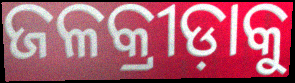
ଜଳକ୍ରୀଡ଼ାକୁ